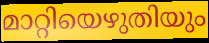
മാറ്റിയെഴുതിയും